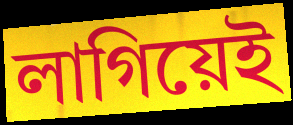
লাগিয়েই